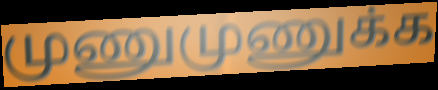
முணுமுணுக்க